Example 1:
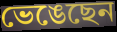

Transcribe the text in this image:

ভেঙেছেন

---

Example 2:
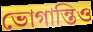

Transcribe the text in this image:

ভোগান্তিও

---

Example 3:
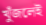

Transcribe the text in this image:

খুঁজলেই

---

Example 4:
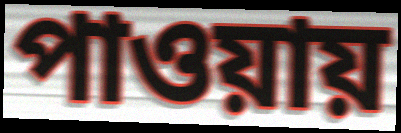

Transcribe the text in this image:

পাওয়ায়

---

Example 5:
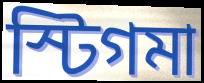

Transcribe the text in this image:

স্টিগমা